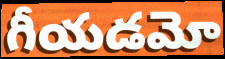
గీయడమో